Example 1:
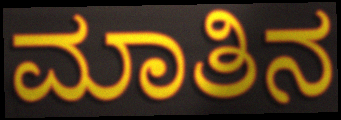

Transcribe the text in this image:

ಮಾತಿನ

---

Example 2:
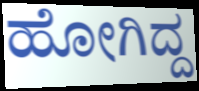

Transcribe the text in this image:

ಹೋಗಿದ್ದ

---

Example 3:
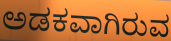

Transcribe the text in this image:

ಅಡಕವಾಗಿರುವ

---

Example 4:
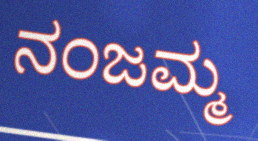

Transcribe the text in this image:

ನಂಜಮ್ಮ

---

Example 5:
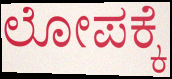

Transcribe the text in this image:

ಲೋಪಕ್ಕೆ